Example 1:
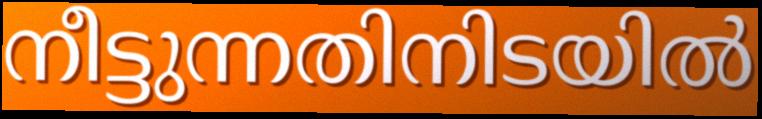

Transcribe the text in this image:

നീട്ടുന്നതിനിടയിൽ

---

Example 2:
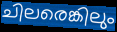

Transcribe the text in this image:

ചിലരെങ്കിലും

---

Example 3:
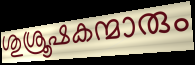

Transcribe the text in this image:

ശുശ്രൂഷകന്മാരും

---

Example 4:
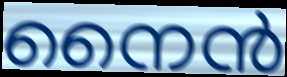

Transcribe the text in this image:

നൈൻ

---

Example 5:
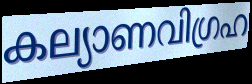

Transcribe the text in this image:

കല്യാണവിഗ്രഹ